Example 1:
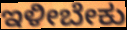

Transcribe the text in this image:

ಇಳೀಬೇಕು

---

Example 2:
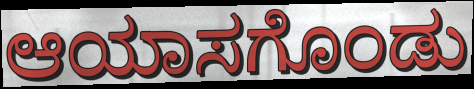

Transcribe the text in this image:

ಆಯಾಸಗೊಂಡು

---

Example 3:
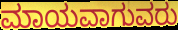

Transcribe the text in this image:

ಮಾಯವಾಗುವರು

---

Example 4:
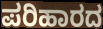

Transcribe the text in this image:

ಪರಿಹಾರದ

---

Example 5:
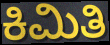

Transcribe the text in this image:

ಕಿಮಿತಿ